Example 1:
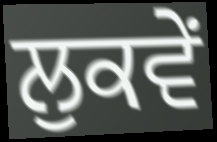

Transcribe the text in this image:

ਲੁਕਵੇਂ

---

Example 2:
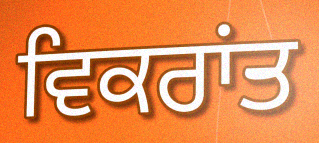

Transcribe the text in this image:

ਵਿਕਰਾਂਤ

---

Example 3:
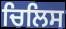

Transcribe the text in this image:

ਚਿਲਿਸ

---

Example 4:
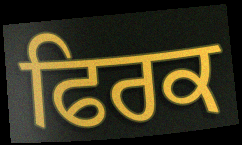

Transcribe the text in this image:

ਫਿਰਕ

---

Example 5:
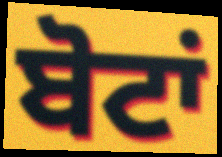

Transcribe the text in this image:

ਬੋਟਾਂ